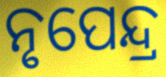
ନୃପେନ୍ଦ୍ର